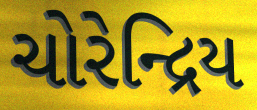
ચોરેન્દ્રિય